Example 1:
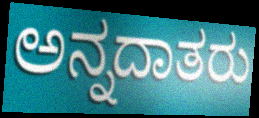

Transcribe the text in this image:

ಅನ್ನದಾತರು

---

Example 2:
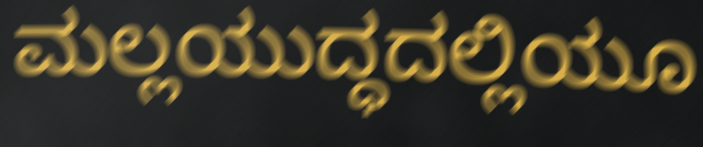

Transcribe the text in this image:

ಮಲ್ಲಯುದ್ಧದಲ್ಲಿಯೂ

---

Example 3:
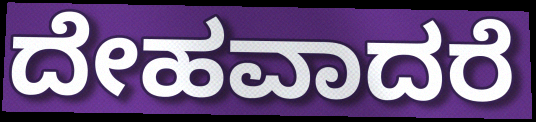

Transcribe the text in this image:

ದೇಹವಾದರೆ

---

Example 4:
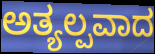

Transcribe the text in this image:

ಅತ್ಯಲ್ಪವಾದ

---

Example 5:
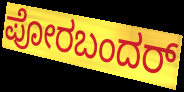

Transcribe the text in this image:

ಪೋರಬಂದರ್